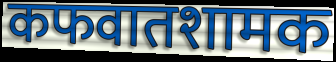
कफवातशामक